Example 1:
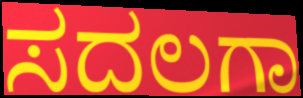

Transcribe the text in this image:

ಸದಲಗಾ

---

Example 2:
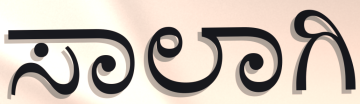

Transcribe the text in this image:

ಸಾಲಾಗಿ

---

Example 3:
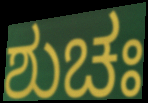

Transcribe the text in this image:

ಶುಚಃ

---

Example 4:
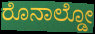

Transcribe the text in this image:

ರೊನಾಲ್ಡೋ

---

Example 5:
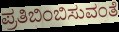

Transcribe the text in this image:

ಪ್ರತಿಬಿಂಬಿಸುವಂತೆ